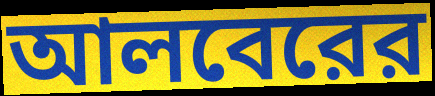
আলবেরের